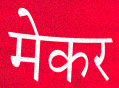
मेकर